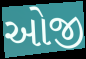
ઓજી